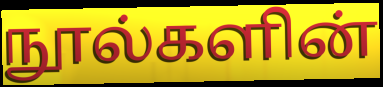
நூல்களின்